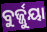
ବୁର୍ଜ୍ଜୁୟା